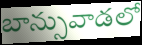
బాన్సువాడలో